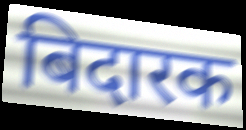
बिदारक